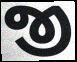
જી